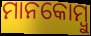
ମାନକୋମ୍ବୁ